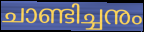
ചാണ്ടിച്ചനും